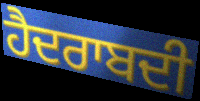
ਹੈਦਰਾਬਦੀ